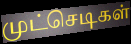
முட்செடிகள்